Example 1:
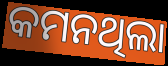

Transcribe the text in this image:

କମନଥିଲା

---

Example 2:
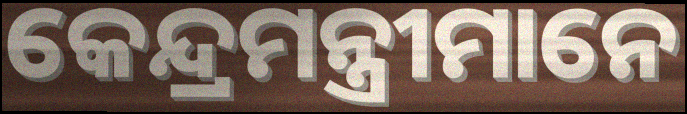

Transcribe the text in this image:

କେନ୍ଦ୍ରମନ୍ତ୍ରୀମାନେ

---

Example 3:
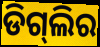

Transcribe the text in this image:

ଡିଗ୍‌ଲିର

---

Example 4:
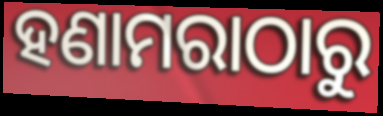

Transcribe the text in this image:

ହଣାମରାଠାରୁ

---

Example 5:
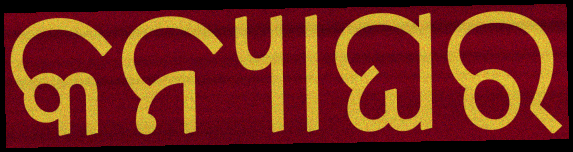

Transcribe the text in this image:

କନ୍ୟାଘର